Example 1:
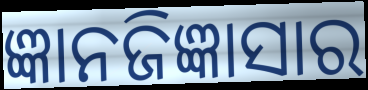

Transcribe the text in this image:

ଜ୍ଞାନଜିଜ୍ଞାସାର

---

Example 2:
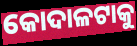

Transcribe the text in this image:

କୋଦାଳଟାକୁ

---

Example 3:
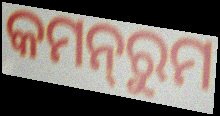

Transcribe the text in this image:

କମନ୍‌ରୁମ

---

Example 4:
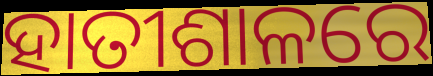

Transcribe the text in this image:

ହାତୀଶାଳରେ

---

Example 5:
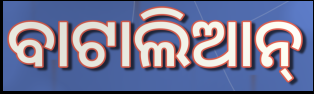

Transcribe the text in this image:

ବାଟାଲିଆନ୍